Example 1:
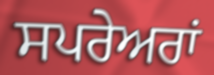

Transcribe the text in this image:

ਸਪਰੇਅਰਾਂ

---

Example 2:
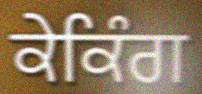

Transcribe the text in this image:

ਕੇਕਿੰਗ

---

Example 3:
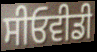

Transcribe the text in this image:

ਸੀਓਵੀਡੀ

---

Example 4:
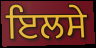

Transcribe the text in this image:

ਇਲਸੇ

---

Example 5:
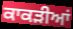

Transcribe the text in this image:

ਕਾਕੜੀਆਂ